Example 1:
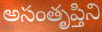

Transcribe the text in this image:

అసంతృప్తిని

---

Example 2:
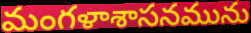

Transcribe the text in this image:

మంగళాశాసనమును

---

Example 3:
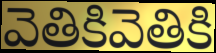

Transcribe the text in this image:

వెతికివెతికి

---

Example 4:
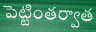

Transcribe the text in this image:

పెట్టింతర్వాత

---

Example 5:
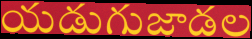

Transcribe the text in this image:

యడుగుజాడల